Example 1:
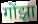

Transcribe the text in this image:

गोंझा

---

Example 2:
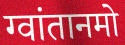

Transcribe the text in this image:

ग्वांतानमो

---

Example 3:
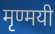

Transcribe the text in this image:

मृण्मयी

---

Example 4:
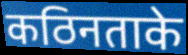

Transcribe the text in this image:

कठिनताके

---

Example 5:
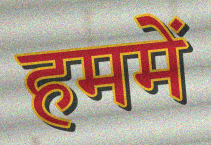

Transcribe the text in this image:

हममें